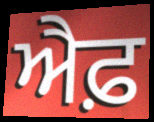
ਐਫ਼